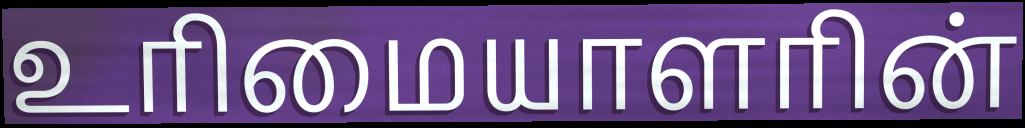
உரிமையாளரின்